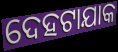
ଦେହଟାଯାକ